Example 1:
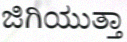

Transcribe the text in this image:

ಜಿಗಿಯುತ್ತಾ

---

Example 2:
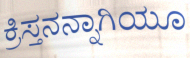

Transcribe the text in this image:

ಕ್ರಿಸ್ತನನ್ನಾಗಿಯೂ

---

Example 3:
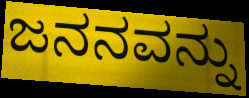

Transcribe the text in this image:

ಜನನವನ್ನು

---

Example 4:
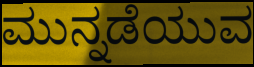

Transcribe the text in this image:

ಮುನ್ನಡೆಯುವ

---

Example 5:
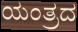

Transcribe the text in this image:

ಯಂತ್ರದ